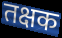
तक्षक